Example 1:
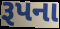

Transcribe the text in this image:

રૂપના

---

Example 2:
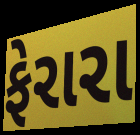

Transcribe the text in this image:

ફેરારા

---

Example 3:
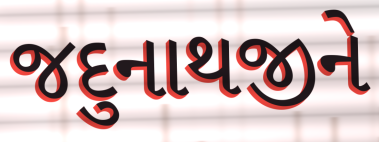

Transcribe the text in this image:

જદુનાથજીને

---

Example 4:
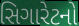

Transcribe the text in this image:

સિગારેટનો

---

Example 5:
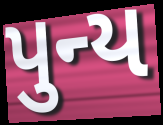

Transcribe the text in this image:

પુન્ય